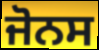
ਜੋਨਸ